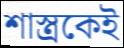
শাস্ত্রকেই